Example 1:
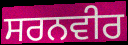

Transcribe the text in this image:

ਸਰਨਵੀਰ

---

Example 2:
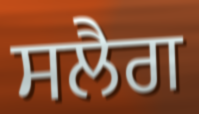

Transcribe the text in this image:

ਸਲੈਗ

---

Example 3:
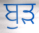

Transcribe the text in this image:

ਬੁੜ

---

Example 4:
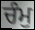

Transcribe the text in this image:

ਚੰਮੁ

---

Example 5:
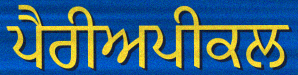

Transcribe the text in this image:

ਪੈਰੀਅਪੀਕਲ